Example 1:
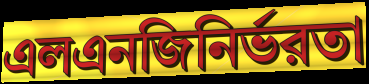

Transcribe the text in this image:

এলএনজিনির্ভরতা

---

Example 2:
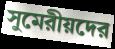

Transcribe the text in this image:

সুমেরীয়দের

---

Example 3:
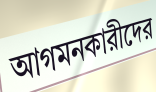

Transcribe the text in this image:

আগমনকারীদের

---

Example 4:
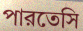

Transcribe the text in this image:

পারতেসি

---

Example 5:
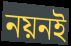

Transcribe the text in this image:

নয়নই